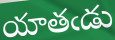
యాతఁడు